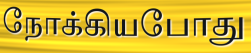
நோக்கியபோது